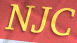
NJC